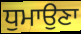
ਧੁਮਾਉਣਾ